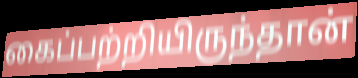
கைப்பற்றியிருந்தான்